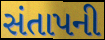
સંતાપની